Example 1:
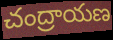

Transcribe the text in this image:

చంద్రాయణ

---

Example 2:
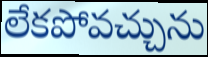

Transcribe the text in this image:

లేకపోవచ్చును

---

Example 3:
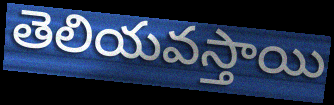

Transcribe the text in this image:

తెలియవస్తాయి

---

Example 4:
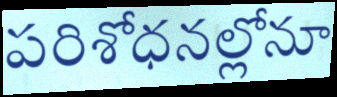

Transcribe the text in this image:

పరిశోధనల్లోనూ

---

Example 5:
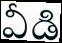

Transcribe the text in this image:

వీడి